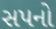
સપનો